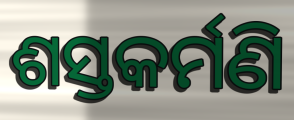
ଶସ୍ତକର୍ମଣି